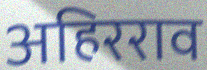
अहिरराव